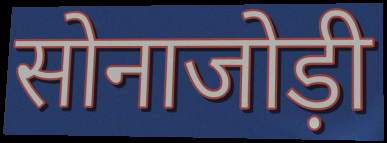
सोनाजोड़ी